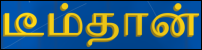
டீம்தான்